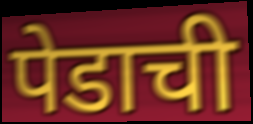
पेडाची